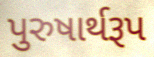
પુરુષાર્થરૂપ